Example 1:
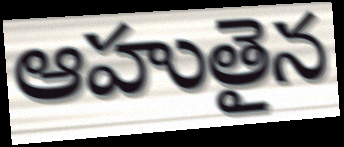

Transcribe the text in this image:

ఆహుతైన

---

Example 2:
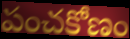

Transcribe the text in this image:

పంచకోణం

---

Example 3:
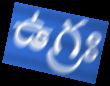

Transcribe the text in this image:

ఉగ్రః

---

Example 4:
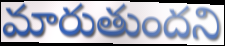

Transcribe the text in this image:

మారుతుందని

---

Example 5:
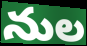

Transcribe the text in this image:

నుల